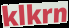
klkrn